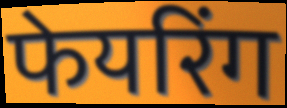
फेयरिंग